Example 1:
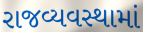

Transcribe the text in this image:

રાજવ્યવસ્થામાં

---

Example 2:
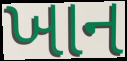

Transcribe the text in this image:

ખાન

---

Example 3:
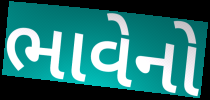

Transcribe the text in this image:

ભાવેનો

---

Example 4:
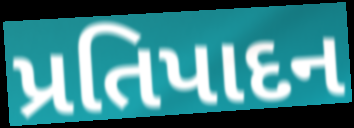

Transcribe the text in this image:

પ્રતિપાદન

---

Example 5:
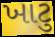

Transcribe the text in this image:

ખાટુ